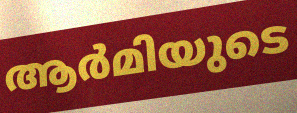
ആർമിയുടെ